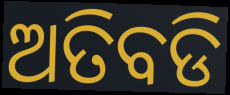
ଅତିବଡି